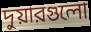
দুয়ারগুলো